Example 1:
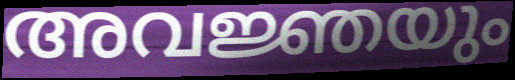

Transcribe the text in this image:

അവജ്ഞയും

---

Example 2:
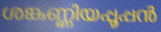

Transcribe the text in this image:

ശങ്കുണ്ണിയപ്പൂപ്പൻ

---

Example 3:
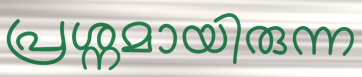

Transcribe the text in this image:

പ്രശ്നമായിരുന്ന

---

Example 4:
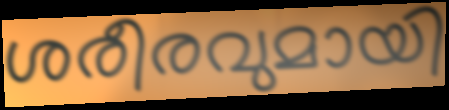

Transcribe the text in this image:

ശരീരവുമായി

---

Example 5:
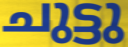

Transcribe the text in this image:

ചുട്ടു